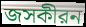
জসকীরন